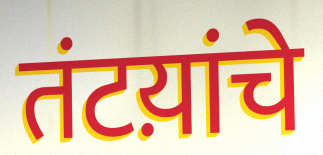
तंटय़ांचे